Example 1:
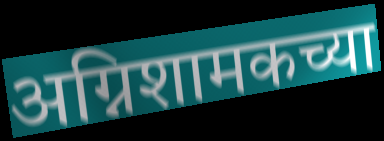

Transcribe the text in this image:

अग्निशामकच्या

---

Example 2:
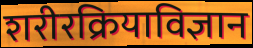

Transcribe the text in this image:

शरीरक्रियाविज्ञान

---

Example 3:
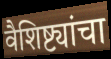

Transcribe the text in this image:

वैशिष्ट्यांचा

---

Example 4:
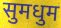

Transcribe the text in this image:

सुमधुम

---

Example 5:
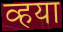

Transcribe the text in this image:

व्हया